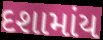
દશામાંય